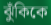
ঝুঁকিকে